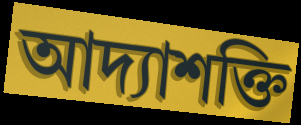
আদ্যাশক্তি